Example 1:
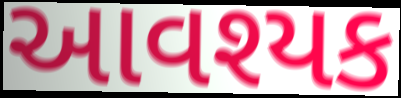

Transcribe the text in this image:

આવશ્યક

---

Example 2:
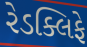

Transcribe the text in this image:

રેડક્લિફે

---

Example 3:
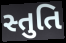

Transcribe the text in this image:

સ્તુતિ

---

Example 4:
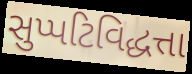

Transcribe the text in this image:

સુપ્પટિવિદ્ધત્તા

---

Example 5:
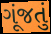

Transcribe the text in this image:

ગૂંજતું